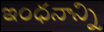
ఇంధనాన్ని